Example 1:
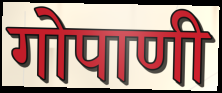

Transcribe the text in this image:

गोपाणी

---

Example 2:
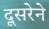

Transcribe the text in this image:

दूसरेने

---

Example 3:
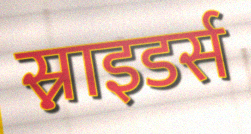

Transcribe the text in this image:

स्नाइडर्स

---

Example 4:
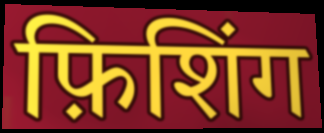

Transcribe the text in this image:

फ़िशिंग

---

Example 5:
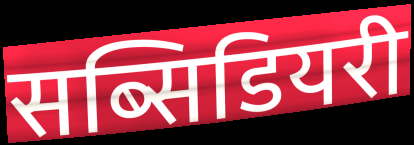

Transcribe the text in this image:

सब्सिडियरी